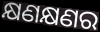
କ୍ଷଣକ୍ଷଣର